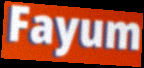
Fayum